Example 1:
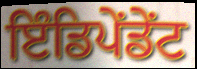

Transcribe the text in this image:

ਇੰਡਿਪੇਂਡੇਂਟ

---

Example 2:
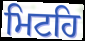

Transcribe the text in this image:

ਮਿਟਹਿ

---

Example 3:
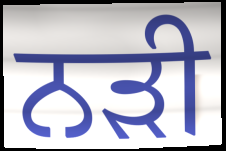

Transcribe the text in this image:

ਨੜੀ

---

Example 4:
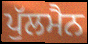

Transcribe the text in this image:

ਪੁੱਲਮੈਨ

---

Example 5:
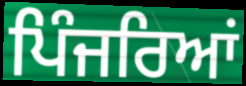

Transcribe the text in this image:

ਪਿੰਜਰਿਆਂ